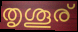
തൃശൂര്